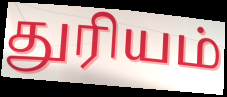
துரியம்